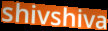
shivshiva